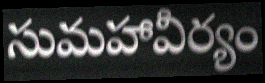
సుమహావీర్యం